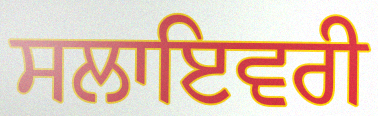
ਸਲਾਇਵਰੀ